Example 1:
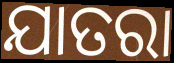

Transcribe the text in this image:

ଯାତରା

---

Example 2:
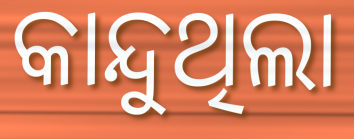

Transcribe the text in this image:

କାନ୍ଦୁଥିଲା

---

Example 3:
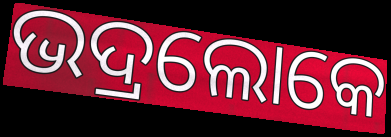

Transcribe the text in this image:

ଭଦ୍ରଲୋକେ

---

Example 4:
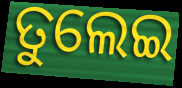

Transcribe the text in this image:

ତୁଲେଇ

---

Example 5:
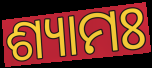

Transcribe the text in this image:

ଶ୍ୟାମଃ